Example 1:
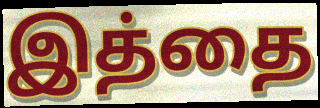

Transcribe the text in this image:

இத்தை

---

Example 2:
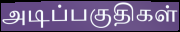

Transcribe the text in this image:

அடிப்பகுதிகள்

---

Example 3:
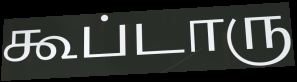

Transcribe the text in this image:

கூப்டாரு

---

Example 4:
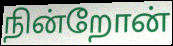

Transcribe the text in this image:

நின்றோன்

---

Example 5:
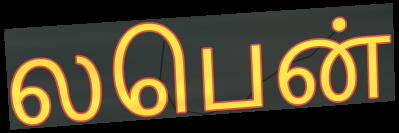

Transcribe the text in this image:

லபென்